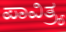
ಪಾವಿತ್ರ್ಯ